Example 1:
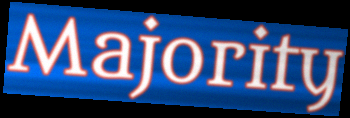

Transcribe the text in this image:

Majority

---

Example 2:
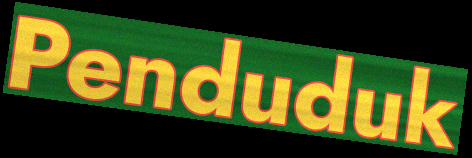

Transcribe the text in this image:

Penduduk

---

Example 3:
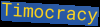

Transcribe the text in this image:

Timocracy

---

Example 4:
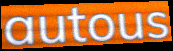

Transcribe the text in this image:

autous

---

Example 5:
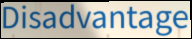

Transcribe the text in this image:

Disadvantage